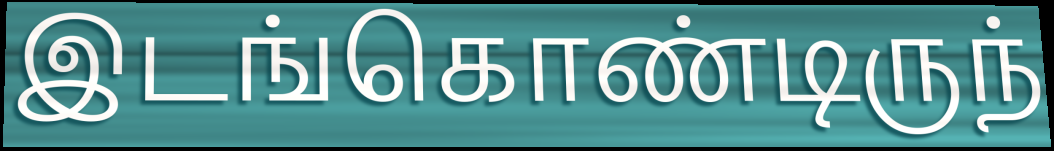
இடங்கொண்டிருந்